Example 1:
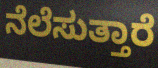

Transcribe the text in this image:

ನೆಲೆಸುತ್ತಾರೆ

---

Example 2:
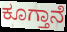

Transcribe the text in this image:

ಕೂಗ್ತಾನೆ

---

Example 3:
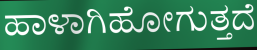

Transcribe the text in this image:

ಹಾಳಾಗಿಹೋಗುತ್ತದೆ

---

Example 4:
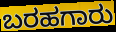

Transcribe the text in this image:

ಬರಹಗಾರು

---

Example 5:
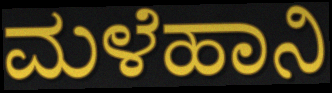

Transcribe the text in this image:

ಮಳೆಹಾನಿ